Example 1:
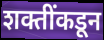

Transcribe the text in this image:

शक्तींकडून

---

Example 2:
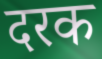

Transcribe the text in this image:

दरक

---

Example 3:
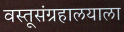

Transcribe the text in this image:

वस्तूसंग्रहालयाला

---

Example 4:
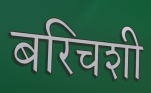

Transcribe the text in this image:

बरिचशी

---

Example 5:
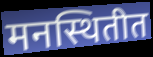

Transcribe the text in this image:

मनस्थितीत